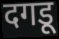
दगडू